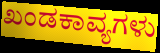
ಖಂಡಕಾವ್ಯಗಳು